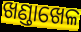
ଖଣ୍ଡାଖେଳ